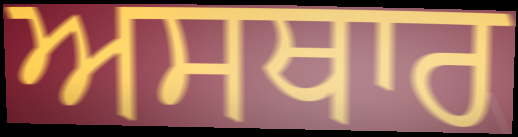
ਅਸਥਾਰ